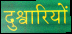
दुश्वारियों